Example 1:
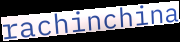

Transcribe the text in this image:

rachinchina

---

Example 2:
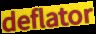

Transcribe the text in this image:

deflator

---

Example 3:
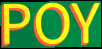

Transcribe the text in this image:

POY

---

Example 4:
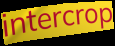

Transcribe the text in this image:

intercrop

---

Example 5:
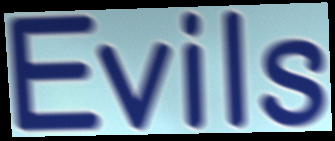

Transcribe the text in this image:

Evils